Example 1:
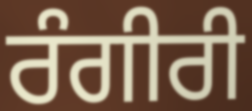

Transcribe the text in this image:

ਰੰਗੀਰੀ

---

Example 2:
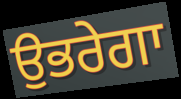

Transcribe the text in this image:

ਉਭਰੇਗਾ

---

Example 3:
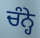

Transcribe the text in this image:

ਚੰਨ੍ਹੇ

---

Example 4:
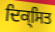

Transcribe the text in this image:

ਦਿਕ੍ਸਿਤ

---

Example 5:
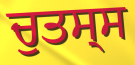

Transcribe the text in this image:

ਚੁਤਸ੍ਸ